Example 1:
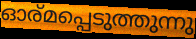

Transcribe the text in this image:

ഓര്മപ്പെടുത്തുന്നു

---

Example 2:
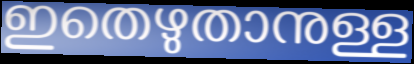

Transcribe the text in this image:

ഇതെഴുതാനുള്ള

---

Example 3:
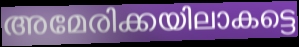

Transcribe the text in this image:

അമേരിക്കയിലാകട്ടെ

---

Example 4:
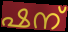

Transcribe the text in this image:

ഷന്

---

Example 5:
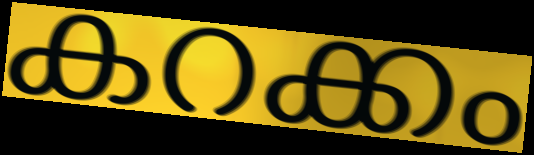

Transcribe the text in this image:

കറക്കം